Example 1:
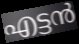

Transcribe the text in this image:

എട്ടൻ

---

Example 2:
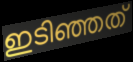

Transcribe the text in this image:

ഇടിഞ്ഞത്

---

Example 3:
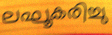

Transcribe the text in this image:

ലഘൂകരിച്ചു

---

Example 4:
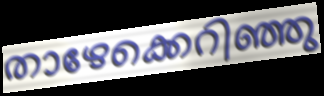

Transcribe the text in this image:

താഴേക്കെറിഞ്ഞു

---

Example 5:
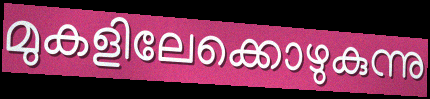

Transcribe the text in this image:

മുകളിലേക്കൊഴുകുന്നു